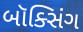
બૉક્સિંગ